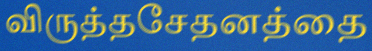
விருத்தசேதனத்தை